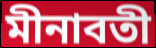
মীনাবতী